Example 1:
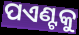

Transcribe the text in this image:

ପଏଣ୍ଟକୁ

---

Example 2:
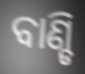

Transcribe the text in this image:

ବାଣ୍ଡି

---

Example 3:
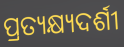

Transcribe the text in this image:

ପ୍ରତ୍ୟକ୍ଷ୍ୟଦର୍ଶୀ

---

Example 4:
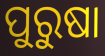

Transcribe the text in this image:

ପୁରୁଷା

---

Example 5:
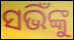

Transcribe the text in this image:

ସଭିଁଙ୍କୁ